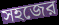
সহজের